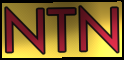
NTN